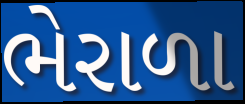
ભેરાળા